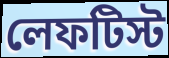
লেফটিস্ট